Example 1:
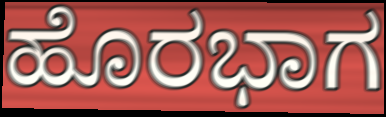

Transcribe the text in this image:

ಹೊರಭಾಗ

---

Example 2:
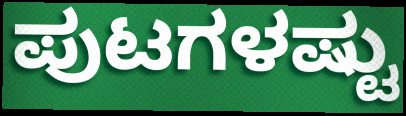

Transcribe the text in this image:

ಪುಟಗಳಷ್ಟು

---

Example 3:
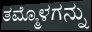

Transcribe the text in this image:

ತಮ್ಮೊಳಗನ್ನು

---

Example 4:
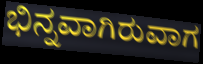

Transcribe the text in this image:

ಭಿನ್ನವಾಗಿರುವಾಗ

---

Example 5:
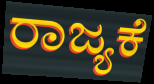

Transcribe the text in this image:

ರಾಜ್ಯಕೆ